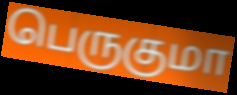
பெருகுமா